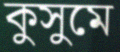
কুসুমে